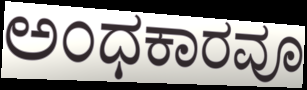
ಅಂಧಕಾರವೂ